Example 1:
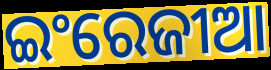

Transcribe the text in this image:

ଇଂରେଜୀଆ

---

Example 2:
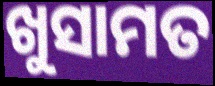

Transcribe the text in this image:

ଖୁସାମତ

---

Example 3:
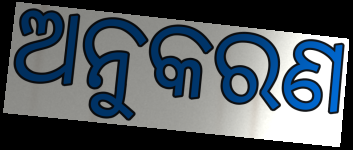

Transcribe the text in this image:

ଅନୁକରଣ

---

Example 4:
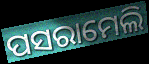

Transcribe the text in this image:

ପସରାମେଲି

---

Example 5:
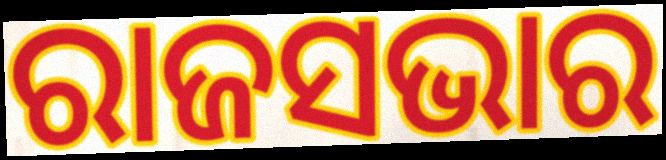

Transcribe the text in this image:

ରାଜସଭାର